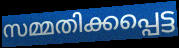
സമ്മതിക്കപ്പെട്ട